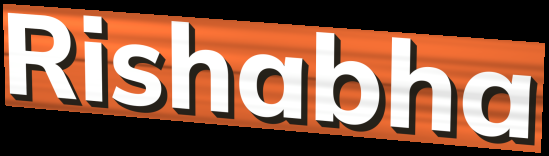
Rishabha